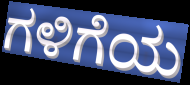
ಗಳಿಗೆಯ